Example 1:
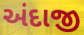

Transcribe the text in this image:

અંદાજી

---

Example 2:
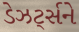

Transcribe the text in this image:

ડેઝર્ટ્સને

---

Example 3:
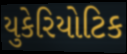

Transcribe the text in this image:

યુકેરિયોટિક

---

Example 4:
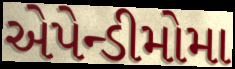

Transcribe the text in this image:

એપેન્ડીમોમા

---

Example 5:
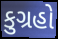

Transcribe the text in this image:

કુગ્રહો